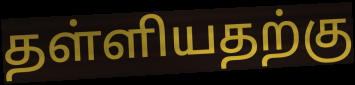
தள்ளியதற்கு